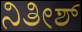
ನಿತೀಶ್